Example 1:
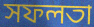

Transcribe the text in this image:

সফলতা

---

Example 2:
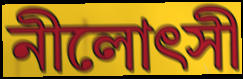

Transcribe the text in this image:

নীলোৎসী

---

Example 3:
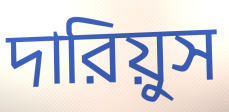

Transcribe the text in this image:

দারিয়ুস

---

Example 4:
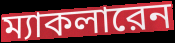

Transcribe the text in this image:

ম্যাকলারেন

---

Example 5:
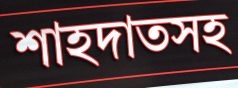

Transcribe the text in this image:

শাহদাতসহ